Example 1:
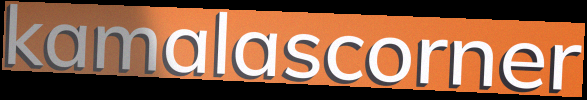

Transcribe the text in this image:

kamalascorner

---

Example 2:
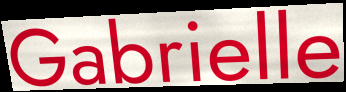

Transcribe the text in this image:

Gabrielle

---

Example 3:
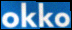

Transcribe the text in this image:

okko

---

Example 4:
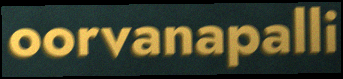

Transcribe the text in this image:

oorvanapalli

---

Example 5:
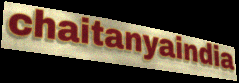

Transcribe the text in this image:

chaitanyaindia